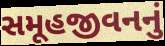
સમૂહજીવનનું